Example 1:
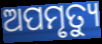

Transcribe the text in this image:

ଅପମୃତ୍ୟୁ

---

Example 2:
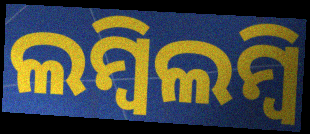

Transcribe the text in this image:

ଲମ୍ବିଲମ୍ବି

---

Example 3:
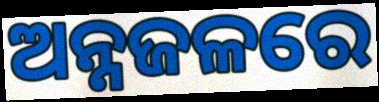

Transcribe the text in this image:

ଅନ୍ନଜଳରେ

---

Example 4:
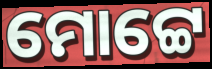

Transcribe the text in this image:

ମୋଟ୍ଟେ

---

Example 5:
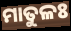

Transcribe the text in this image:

ମାତୁଳଃ